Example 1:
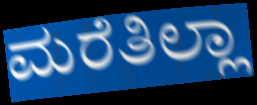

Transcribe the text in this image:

ಮರೆತಿಲ್ಲಾ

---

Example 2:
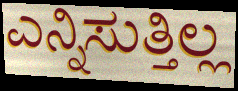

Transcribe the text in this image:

ಎನ್ನಿಸುತ್ತಿಲ್ಲ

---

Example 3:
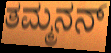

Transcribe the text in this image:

ತಮ್ಮನನ್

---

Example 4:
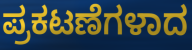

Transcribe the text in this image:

ಪ್ರಕಟಣೆಗಳಾದ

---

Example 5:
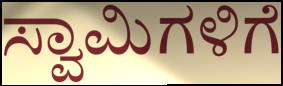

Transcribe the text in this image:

ಸ್ವಾಮಿಗಳಿಗೆ